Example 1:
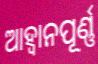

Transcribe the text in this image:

ଆହ୍ବାନପୂର୍ଣ୍ଣ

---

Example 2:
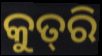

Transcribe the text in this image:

କୁତ୍‌ରି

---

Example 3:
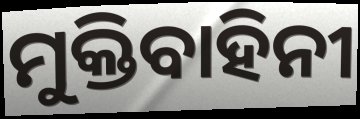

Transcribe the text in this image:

ମୁକ୍ତିବାହିନୀ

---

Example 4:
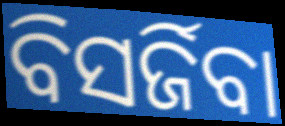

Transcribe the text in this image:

ବିସର୍ଜିବା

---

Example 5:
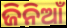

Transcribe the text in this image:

ଜିନିଆଁ